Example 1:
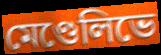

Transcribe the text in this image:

মেণ্ডেলিভে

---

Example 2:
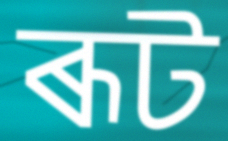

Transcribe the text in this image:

ৰূট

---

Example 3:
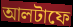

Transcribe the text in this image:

আলটাফে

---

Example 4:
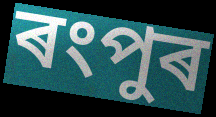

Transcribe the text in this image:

ৰংপুৰ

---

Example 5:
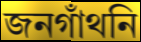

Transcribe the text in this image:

জনগাঁথনি